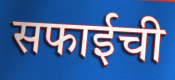
सफाईची